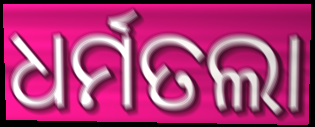
ଧର୍ମତଲା